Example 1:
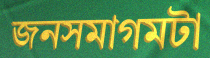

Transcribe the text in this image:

জনসমাগমটা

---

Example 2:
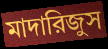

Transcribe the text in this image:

মাদারিজুস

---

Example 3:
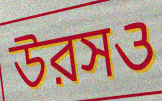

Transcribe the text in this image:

উরসও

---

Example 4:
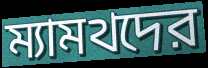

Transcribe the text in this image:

ম্যামথদের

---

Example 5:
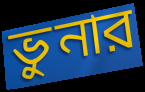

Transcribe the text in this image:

ভুনার